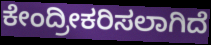
ಕೇಂದ್ರೀಕರಿಸಲಾಗಿದೆ